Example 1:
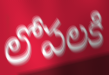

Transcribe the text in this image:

లోపలకి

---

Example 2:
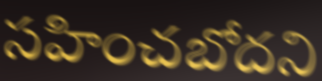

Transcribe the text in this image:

సహించబోదని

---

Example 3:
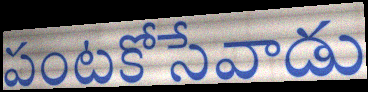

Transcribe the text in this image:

పంటకోసేవాడు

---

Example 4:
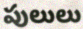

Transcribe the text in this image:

పులులు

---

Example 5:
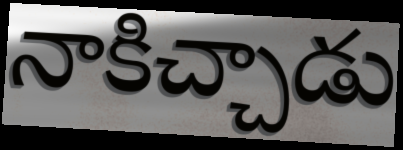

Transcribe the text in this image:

నాకిచ్చాడు